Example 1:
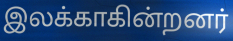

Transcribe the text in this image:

இலக்காகின்றனர்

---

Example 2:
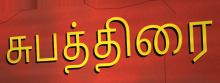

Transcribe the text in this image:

சுபத்திரை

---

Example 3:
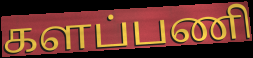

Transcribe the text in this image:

களப்பணி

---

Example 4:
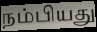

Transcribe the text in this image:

நம்பியது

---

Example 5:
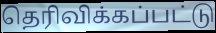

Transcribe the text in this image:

தெரிவிக்கப்பட்டு